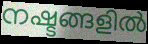
നഷ്ടങ്ങളിൽ